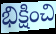
భిక్షించి